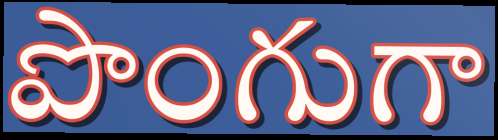
పొంగుగా